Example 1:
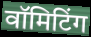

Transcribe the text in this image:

वॉमिटिंग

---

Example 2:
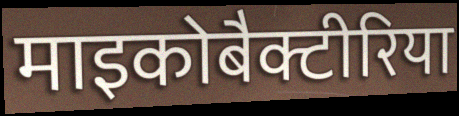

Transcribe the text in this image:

माइकोबैक्टीरिया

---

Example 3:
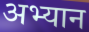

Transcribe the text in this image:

अभ्यान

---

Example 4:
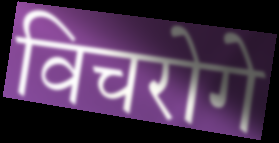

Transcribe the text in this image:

विचरोगे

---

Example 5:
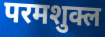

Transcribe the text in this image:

परमशुक्ल